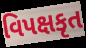
વિપક્ષકૃત